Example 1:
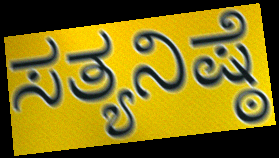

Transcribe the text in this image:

ಸತ್ಯನಿಷ್ಠೆ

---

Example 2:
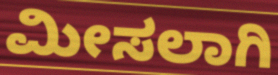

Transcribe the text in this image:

ಮೀಸಲಾಗಿ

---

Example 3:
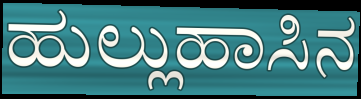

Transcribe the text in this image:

ಹುಲ್ಲುಹಾಸಿನ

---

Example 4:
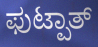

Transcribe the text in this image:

ಫುಟ್ಪಾತ್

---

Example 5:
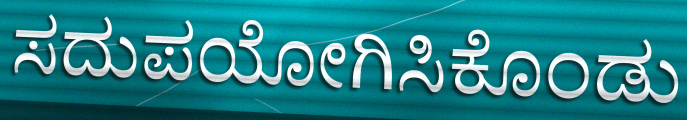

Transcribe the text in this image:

ಸದುಪಯೋಗಿಸಿಕೊಂಡು